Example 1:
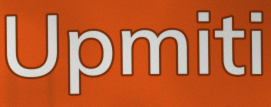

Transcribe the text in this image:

Upmiti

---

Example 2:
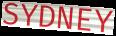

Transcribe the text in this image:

SYDNEY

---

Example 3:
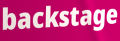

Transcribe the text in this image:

backstage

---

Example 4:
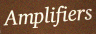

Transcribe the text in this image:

Amplifiers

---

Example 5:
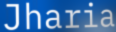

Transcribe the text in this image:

Jharia